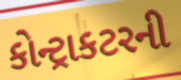
કોન્ટ્રાકટરની